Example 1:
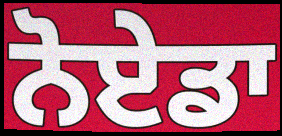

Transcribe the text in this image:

ਨੋਏਡਾ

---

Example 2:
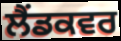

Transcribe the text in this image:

ਲੈਂਡਕਵਰ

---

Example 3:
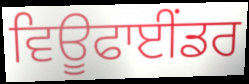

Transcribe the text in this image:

ਵਿਊਫਾਈਂਡਰ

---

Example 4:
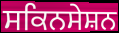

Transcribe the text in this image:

ਸਕਿਨਸੇਸ਼ਨ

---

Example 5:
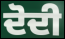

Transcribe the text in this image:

ਦੋਦੀ